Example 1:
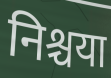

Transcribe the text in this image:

निश्चया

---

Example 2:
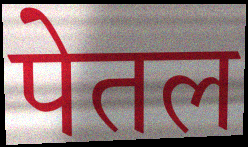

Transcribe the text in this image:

पेतल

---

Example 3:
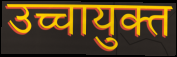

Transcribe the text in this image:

उच्‍चायुक्‍त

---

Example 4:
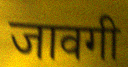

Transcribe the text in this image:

जावगी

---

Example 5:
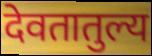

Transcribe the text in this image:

देवतातुल्य